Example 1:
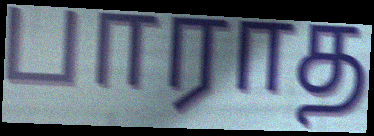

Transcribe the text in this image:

பாராத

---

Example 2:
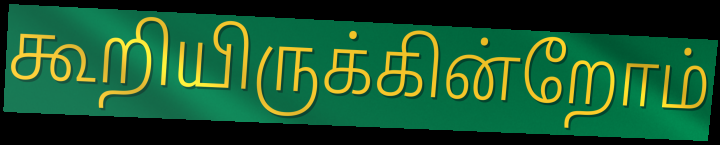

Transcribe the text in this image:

கூறியிருக்கின்றோம்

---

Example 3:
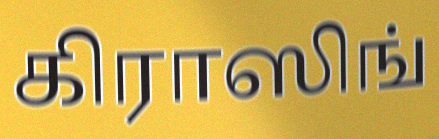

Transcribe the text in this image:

கிராஸிங்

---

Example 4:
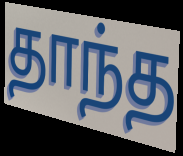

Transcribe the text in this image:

தாந்த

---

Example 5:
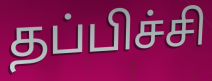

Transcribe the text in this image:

தப்பிச்சி